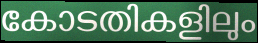
കോടതികളിലും